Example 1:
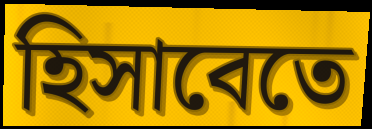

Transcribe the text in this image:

হিসাবেতে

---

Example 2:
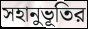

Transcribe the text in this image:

সহানুভূতির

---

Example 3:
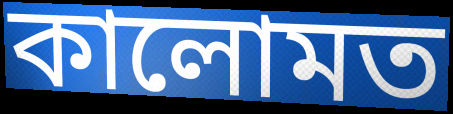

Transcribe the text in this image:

কালোমত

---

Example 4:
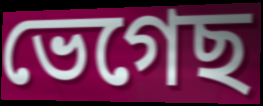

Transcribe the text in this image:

ভেগেছ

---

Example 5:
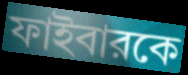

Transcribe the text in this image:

ফাইবারকে